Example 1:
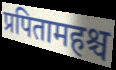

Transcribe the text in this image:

प्रपितामहश्च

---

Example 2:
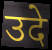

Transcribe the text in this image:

उदे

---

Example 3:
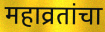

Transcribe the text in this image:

महाव्रतांचा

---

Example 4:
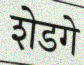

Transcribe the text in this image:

शेडगे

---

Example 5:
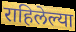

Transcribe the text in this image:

राहिलेल्या